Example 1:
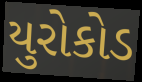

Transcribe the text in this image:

યુરોકોડ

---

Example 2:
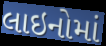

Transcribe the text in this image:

લાઇનોમાં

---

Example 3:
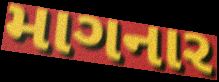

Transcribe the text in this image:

માગનાર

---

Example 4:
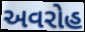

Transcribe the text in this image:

અવરોહ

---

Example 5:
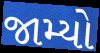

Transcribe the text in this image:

જામ્યો